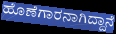
ಹೊಣೆಗಾರನಾಗಿದ್ದಾನೆ